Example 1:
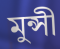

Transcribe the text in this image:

মুন্সী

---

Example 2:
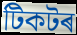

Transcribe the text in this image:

টিকটৰ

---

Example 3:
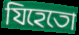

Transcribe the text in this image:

যিহেতো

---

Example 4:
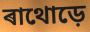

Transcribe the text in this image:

ৰাথোড়ে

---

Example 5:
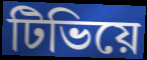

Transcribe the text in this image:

টিভিয়ে